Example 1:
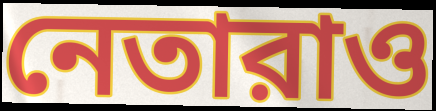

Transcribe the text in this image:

নেতারাও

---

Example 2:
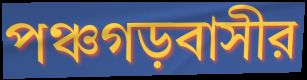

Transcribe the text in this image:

পঞ্চগড়বাসীর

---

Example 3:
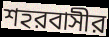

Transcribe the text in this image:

শহরবাসীর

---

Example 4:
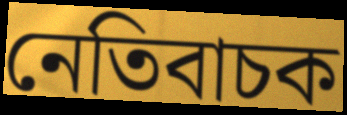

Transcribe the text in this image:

নেতিবাচক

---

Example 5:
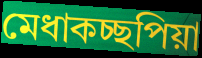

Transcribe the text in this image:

মেধাকচ্ছপিয়া